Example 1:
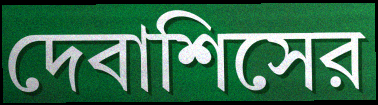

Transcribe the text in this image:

দেবাশিসের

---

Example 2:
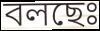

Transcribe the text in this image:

বলছেঃ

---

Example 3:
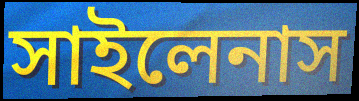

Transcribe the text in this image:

সাইলেনাস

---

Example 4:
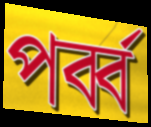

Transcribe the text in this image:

পর্ব্ব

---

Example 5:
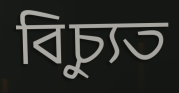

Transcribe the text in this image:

বিচ্যুত